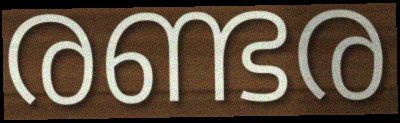
രണ്ടര